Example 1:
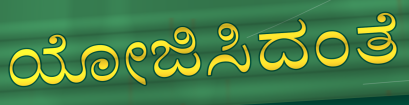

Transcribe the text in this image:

ಯೋಜಿಸಿದಂತೆ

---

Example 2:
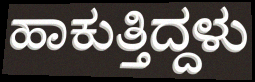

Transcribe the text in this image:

ಹಾಕುತ್ತಿದ್ದಳು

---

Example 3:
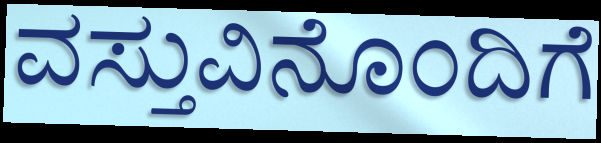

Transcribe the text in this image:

ವಸ್ತುವಿನೊಂದಿಗೆ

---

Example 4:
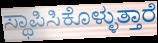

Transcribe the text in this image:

ಸ್ಥಾಪಿಸಿಕೊಳ್ಳುತ್ತಾರೆ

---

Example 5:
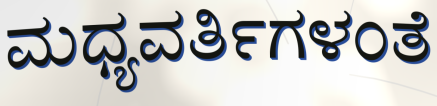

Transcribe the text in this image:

ಮಧ್ಯವರ್ತಿಗಳಂತೆ